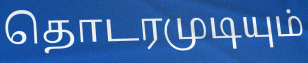
தொடரமுடியும்